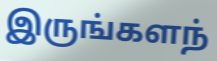
இருங்களந்